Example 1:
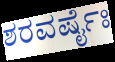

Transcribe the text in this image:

ಶರವರ್ಷೈಃ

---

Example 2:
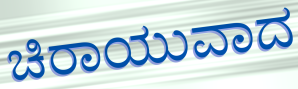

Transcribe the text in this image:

ಚಿರಾಯುವಾದ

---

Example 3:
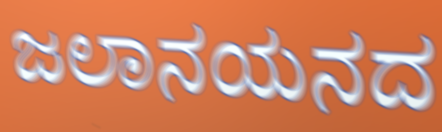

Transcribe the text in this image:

ಜಲಾನಯನದ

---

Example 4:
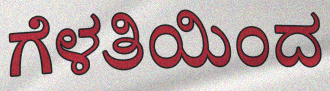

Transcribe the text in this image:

ಗೆಳತಿಯಿಂದ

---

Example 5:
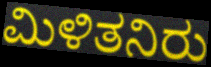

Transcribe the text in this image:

ಮಿಳಿತನಿರು